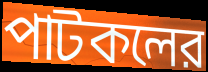
পাটকলের